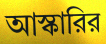
আস্কারির